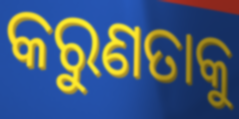
କରୁଣତାକୁ